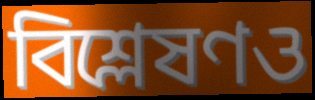
বিশ্লেষণও